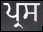
ਪ੍ਰਸ